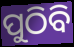
ପୁଠିବି